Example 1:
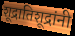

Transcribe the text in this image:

शूद्रातिशूद्रांनी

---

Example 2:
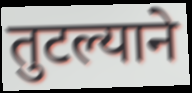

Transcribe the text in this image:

तुटल्याने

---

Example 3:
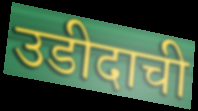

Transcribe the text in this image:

उडीदाची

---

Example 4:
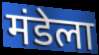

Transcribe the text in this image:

मंडेला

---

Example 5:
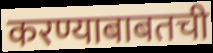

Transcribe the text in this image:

करण्याबाबतची